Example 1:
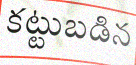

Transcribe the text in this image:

కట్టుబడిన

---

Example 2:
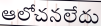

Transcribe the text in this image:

ఆలోచనలేదు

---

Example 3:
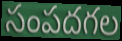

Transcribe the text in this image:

సంపదగల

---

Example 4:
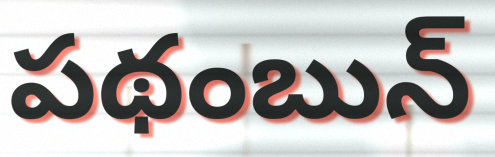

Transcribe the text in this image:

పథంబున్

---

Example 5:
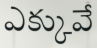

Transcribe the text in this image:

ఎక్కువే